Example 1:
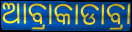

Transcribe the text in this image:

ଆବ୍ରାକାଡାବ୍ରା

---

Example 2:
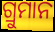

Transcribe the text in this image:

ଗ୍ରୁମାନ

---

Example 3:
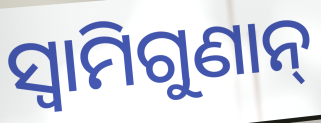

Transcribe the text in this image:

ସ୍ୱାମିଗୁଣାନ୍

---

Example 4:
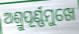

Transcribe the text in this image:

ଅଶ୍ରୁପୂର୍ଣ୍ଣମୁଖେ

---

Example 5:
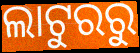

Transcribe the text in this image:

ଲାଟୁରରୁ